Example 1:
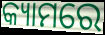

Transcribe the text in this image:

କ୍ୟାମରେ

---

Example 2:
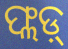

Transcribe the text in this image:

ଫ୍ଲଡ଼୍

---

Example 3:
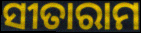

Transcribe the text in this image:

ସୀତାରାମ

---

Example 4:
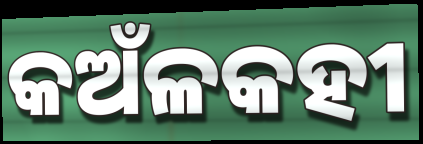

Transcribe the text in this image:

କଅଁଳକହୀ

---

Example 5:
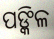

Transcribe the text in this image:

ପଙ୍କିଳ